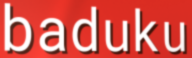
baduku